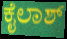
ಕೈಲಾಶ್